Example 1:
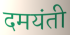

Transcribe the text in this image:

दमयंती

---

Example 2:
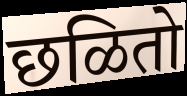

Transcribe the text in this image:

छळितो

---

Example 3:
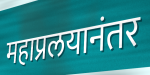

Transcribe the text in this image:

महाप्रलयानंतर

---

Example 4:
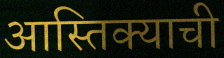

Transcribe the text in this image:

आस्तिक्याची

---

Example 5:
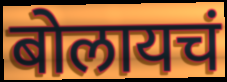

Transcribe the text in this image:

बोलायचं